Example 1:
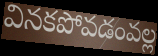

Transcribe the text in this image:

వినకపోవడంవల్ల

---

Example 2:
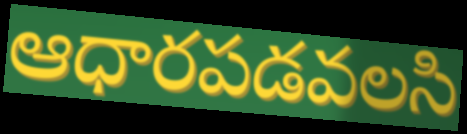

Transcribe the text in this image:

ఆధారపడవలసి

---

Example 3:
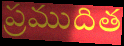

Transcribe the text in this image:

ప్రముదిత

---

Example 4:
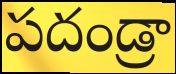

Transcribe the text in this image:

పదండ్రా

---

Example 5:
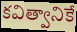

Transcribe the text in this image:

కవిత్వానికే